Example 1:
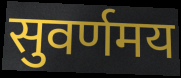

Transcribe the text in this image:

सुवर्णमय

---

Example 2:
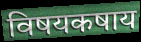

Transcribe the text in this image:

विषयकषाय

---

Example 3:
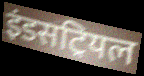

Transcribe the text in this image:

इंडसट्रियल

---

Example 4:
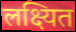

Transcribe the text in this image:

लक्ष्यित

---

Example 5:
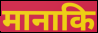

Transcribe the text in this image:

मानाकि